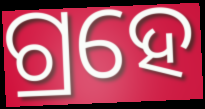
ଗ୍ରହେ